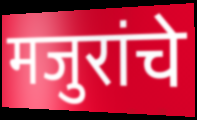
मजुरांचे